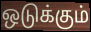
ஒடுக்கும்